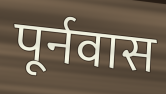
पूर्नवास